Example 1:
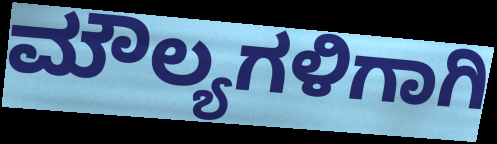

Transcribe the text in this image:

ಮೌಲ್ಯಗಳಿಗಾಗಿ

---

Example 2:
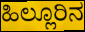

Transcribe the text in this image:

ಹಿಲ್ಲೂರಿನ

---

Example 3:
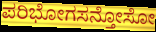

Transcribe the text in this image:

ಪರಿಭೋಗಸನ್ತೋಸೋ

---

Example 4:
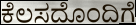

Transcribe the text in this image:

ಕೆಲಸದೊಂದಿಗೆ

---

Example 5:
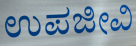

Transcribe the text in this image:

ಉಪಜೀವಿ